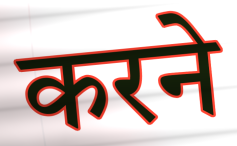
करने